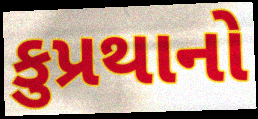
કુપ્રથાનો